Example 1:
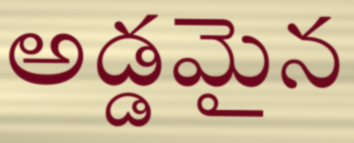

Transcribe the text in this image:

అడ్డమైన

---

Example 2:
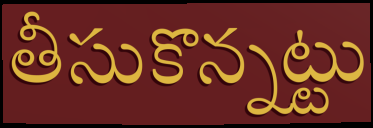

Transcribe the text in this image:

తీసుకొన్నట్టు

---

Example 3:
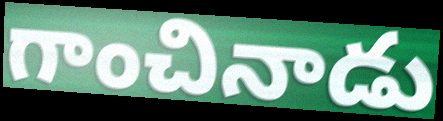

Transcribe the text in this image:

గాంచినాడు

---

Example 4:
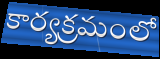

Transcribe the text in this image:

కార్యక్రమంలో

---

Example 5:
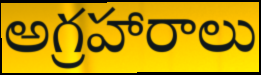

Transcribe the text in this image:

అగ్రహారాలు